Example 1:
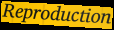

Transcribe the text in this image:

Reproduction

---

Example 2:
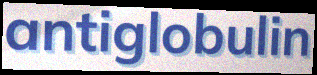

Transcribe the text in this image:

antiglobulin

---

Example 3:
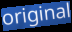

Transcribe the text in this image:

original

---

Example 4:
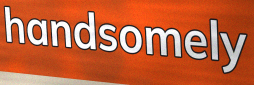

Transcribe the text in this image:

handsomely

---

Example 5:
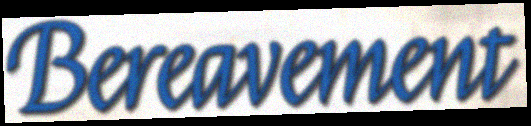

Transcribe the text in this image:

Bereavement